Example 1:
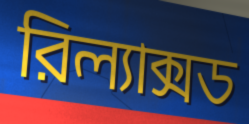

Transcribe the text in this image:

রিল্যাক্সড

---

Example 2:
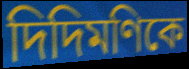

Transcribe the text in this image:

দিদিমণিকে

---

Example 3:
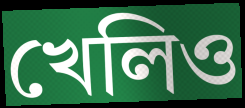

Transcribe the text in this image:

খেলিও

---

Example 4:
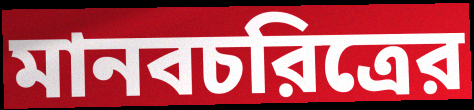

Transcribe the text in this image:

মানবচরিত্রের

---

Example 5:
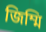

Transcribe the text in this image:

জিম্মি